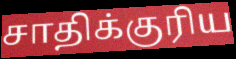
சாதிக்குரிய